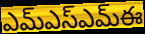
ఎమ్ఎస్ఎమ్ఈ